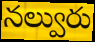
నల్వురు